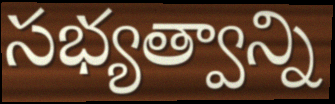
సభ్యత్వాన్ని